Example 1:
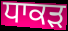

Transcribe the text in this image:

ਧਾਕੜ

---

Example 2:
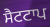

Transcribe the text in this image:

ਸੈਟਟਾਪ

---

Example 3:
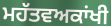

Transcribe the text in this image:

ਮਹੱਤਵਅਕਾਂਖੀ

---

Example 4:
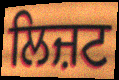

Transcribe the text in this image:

ਲਿਜ਼ਟ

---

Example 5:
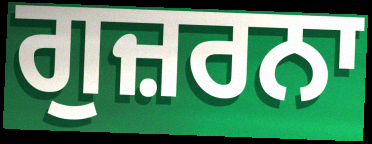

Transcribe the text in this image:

ਗੁਜ਼ਰਨਾ